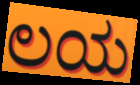
ಲಯ